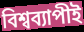
বিশ্বব্যাপীই